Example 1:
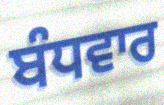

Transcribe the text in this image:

ਬੰਧਵਾਰ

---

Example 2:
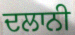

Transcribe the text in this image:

ਦਲਾਨੀ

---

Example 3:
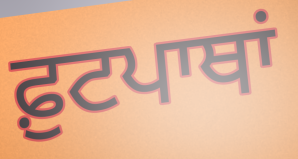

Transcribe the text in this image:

ਫ਼ੁਟਪਾਥਾਂ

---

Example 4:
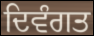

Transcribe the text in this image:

ਦਿਵੰਗਤ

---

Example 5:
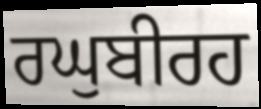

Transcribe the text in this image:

ਰਘੁਬੀਰਹ